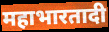
महाभारतादी